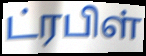
ட்ரபிள்